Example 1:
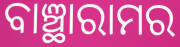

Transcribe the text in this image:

ବାଞ୍ଛାରାମର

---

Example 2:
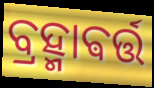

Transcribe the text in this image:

ବ୍ରହ୍ମାଵର୍ତ୍ତ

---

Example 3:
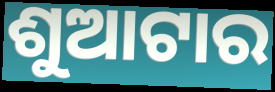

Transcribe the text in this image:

ଶୁଆଟାର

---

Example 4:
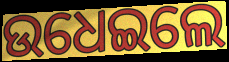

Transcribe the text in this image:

ଉଧେଇଲେ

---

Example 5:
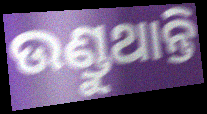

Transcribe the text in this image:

ଉଣ୍ଡୁଥାନ୍ତି